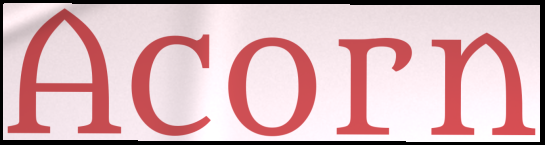
Acorn